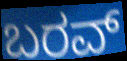
ಬರವ್